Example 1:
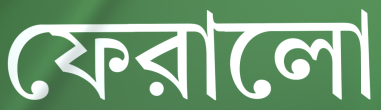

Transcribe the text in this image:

ফেরালো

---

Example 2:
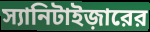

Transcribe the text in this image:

স্যানিটাইজ়ারের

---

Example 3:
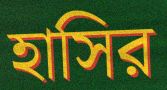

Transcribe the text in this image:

হাসির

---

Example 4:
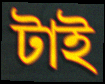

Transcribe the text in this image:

টাই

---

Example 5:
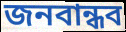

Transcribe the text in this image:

জনবান্ধব